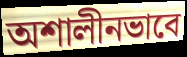
অশালীনভাবে